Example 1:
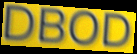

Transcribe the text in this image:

DBOD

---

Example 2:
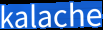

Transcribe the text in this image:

kalache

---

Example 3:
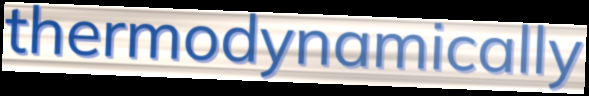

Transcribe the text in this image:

thermodynamically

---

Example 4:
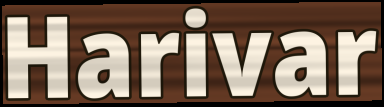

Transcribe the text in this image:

Harivar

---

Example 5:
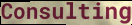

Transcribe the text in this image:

Consulting